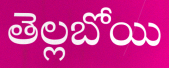
తెల్లబోయి